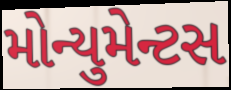
મોન્યુમેન્ટસ